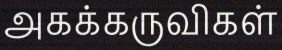
அகக்கருவிகள்